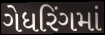
ગેધરિંગમાં